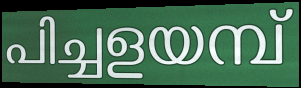
പിച്ചളയമ്പ്